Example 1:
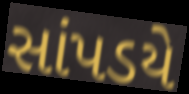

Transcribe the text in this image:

સાંપડયે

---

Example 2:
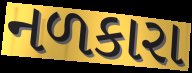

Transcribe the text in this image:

નળકારા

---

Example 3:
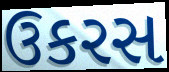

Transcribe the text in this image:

ઉકરસ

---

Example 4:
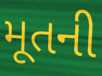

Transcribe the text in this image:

મૂતની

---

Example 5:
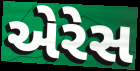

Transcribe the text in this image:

એરેસ